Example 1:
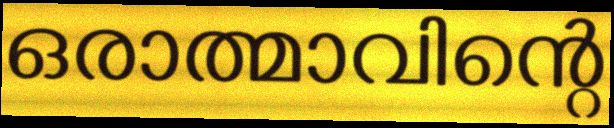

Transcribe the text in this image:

ഒരാത്മാവിന്റെ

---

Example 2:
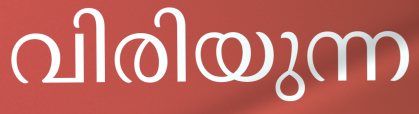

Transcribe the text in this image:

വിരിയുന്ന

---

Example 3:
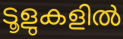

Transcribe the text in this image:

ടൂളുകളിൽ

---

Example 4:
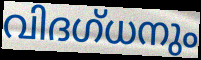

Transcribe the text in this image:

വിദഗ്ധനും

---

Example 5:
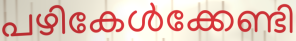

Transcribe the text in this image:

പഴികേൾക്കേണ്ടി